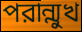
পরান্মুখ